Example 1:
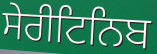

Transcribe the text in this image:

ਸੇਰੀਟਿਨਿਬ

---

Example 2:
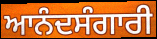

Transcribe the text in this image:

ਆਨੰਦਸੰਗਾਰੀ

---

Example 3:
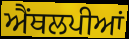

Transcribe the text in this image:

ਐਂਥਲਪੀਆਂ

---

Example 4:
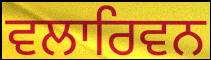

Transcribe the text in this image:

ਵਲਾਰਿਵਨ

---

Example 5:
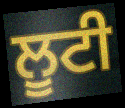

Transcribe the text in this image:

ਲੂਟੀ